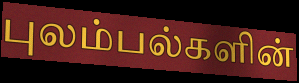
புலம்பல்களின்